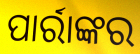
ପାର୍ରାଙ୍କର